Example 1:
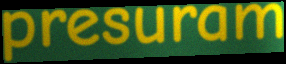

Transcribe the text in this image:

presuram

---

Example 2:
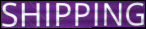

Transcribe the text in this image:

SHIPPING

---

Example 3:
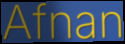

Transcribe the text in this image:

Afnan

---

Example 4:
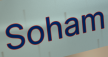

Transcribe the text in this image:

Soham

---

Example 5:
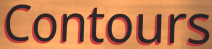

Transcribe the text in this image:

Contours